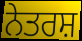
ਨੇਤਰਸ਼